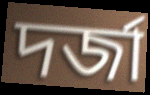
দৰ্জা